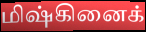
மிஷ்கினைக்